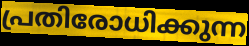
പ്രതിരോധിക്കുന്ന